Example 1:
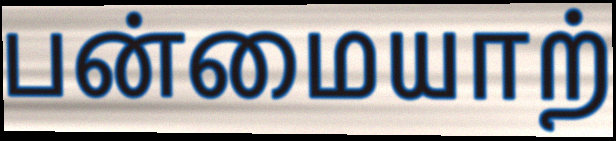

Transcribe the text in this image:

பன்மையாற்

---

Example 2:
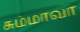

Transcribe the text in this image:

சும்மாவா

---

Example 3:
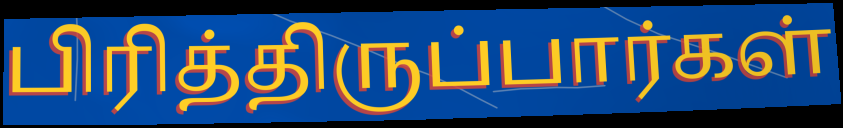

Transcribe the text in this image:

பிரித்திருப்பார்கள்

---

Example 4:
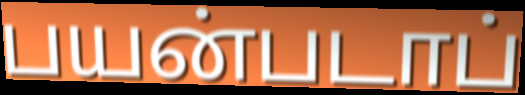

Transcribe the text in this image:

பயன்படாப்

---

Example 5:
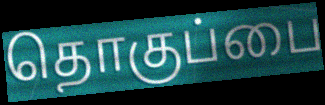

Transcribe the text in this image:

தொகுப்பை